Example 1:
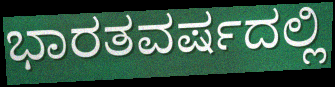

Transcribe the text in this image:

ಭಾರತವರ್ಷದಲ್ಲಿ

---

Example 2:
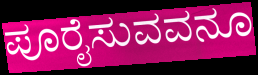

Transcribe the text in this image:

ಪೂರೈಸುವವನೂ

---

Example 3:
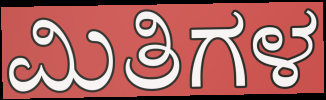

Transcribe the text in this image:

ಮಿತಿಗಳ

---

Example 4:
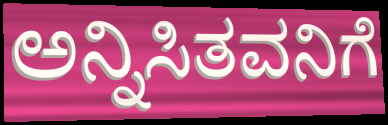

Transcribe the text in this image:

ಅನ್ನಿಸಿತವನಿಗೆ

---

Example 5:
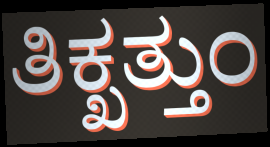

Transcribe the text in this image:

ತಿಕ್ಖತ್ತುಂ